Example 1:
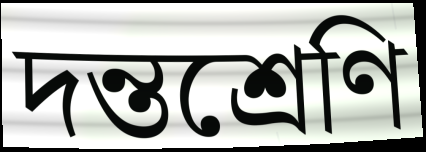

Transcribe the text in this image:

দন্তশ্রেণি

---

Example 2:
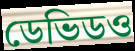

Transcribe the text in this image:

ডেভিডও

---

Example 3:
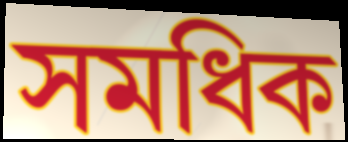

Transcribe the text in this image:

সমধিক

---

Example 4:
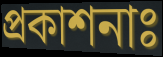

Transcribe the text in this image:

প্রকাশনাঃ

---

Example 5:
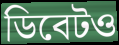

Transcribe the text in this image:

ডিবেটও